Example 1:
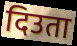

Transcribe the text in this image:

दिउता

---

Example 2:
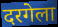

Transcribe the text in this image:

दरगेला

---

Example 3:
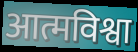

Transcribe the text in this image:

आत्मविश्वा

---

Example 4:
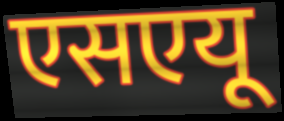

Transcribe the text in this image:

एसएयू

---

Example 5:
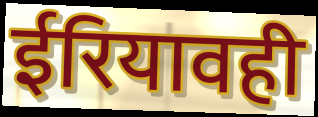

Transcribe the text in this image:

ईरियावही